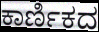
ಕಾರ್ಣಿಕದ